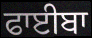
ਫਾਈਬਾ